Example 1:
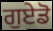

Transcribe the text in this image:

ਗੁਏਡੋ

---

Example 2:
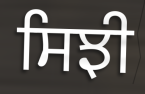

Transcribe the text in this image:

ਸਿਝੀ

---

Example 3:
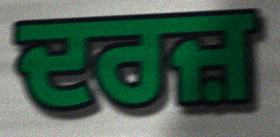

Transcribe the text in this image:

ਦਰਜ਼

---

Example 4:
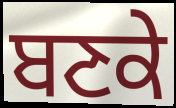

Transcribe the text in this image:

ਬਣਕੇ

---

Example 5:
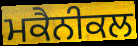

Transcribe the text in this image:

ਮਕੈਨੀਕਲ